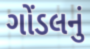
ગોંડલનું